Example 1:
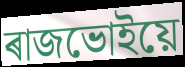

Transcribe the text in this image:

ৰাজভোইয়ে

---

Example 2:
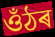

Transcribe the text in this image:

ওঁঠৰ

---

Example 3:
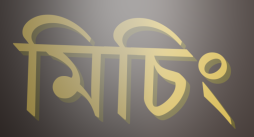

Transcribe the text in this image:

মিচিং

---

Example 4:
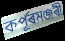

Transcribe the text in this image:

কৰ্পূৰমঞ্জৰী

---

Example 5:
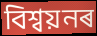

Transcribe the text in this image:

বিশ্বয়নৰ